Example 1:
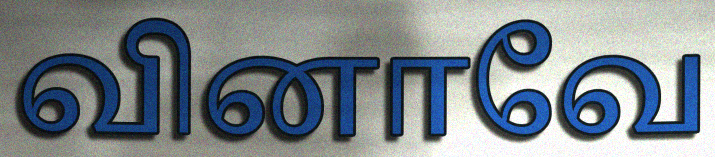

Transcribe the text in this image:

வினாவே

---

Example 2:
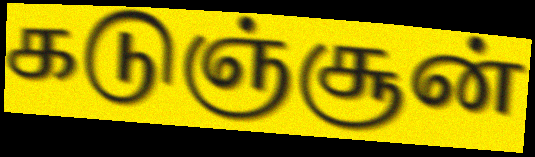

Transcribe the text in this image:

கடுஞ்சூன்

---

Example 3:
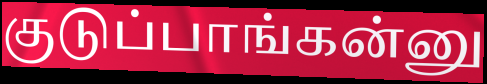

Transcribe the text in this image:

குடுப்பாங்கன்னு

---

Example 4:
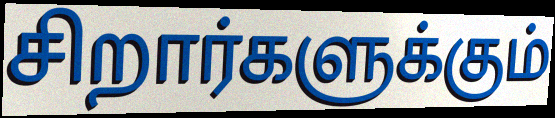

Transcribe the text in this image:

சிறார்களுக்கும்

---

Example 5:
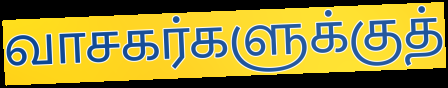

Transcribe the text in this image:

வாசகர்களுக்குத்